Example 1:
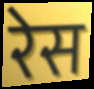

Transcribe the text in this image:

रेस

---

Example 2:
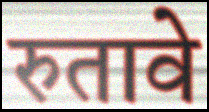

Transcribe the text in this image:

रुतावे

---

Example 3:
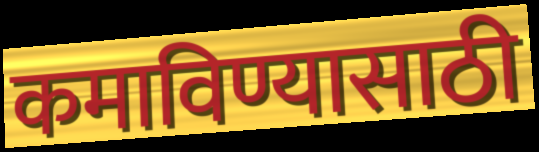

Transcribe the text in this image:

कमाविण्यासाठी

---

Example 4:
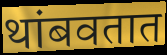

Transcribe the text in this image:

थांबवतात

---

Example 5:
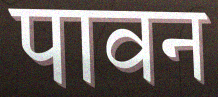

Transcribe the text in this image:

पावन